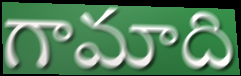
గామాది